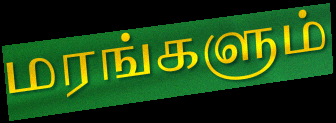
மரங்களும்